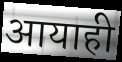
आयाही